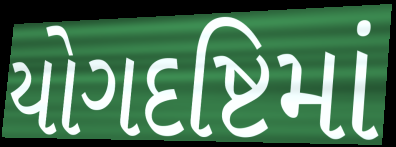
યોગદષ્ટિમાં